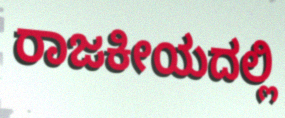
ರಾಜಕೀಯದಲ್ಲಿ